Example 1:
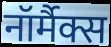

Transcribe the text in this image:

नॉर्मैक्स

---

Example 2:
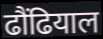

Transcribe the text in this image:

ढौंढियाल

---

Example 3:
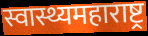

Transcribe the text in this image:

स्वास्थ्यमहाराष्ट्र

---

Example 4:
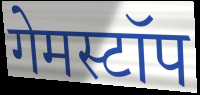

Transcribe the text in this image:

गेमस्टॉप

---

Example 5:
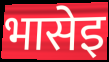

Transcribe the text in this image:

भासेइ